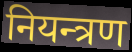
नियन्त्रण